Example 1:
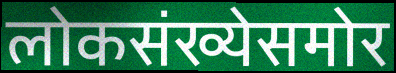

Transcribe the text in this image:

लोकसंख्येसमोर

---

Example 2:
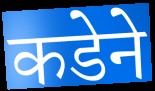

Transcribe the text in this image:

कडेने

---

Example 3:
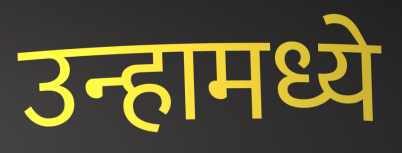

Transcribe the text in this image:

उन्हामध्ये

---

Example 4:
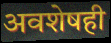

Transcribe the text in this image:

अवशेषही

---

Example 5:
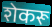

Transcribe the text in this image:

शेकरू